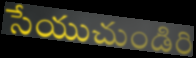
సేయుచుండిరి